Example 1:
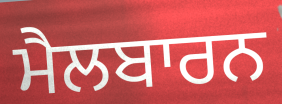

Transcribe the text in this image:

ਮੈਲਬਾਰਨ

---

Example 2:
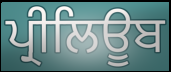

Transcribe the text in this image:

ਪ੍ਰੀਲਿਊਬ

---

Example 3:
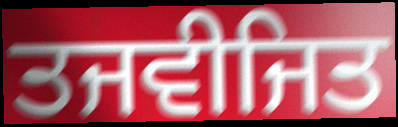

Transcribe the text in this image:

ਤਜਵੀਜਿਤ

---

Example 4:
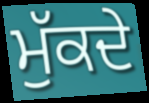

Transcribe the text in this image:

ਮੁੱਕਦੇ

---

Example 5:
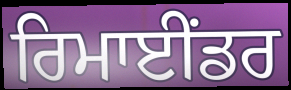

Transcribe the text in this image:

ਰਿਮਾਈਂਡਰ